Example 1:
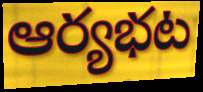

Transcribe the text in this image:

ఆర్యభట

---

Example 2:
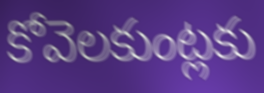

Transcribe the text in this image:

కోవెలకుంట్లకు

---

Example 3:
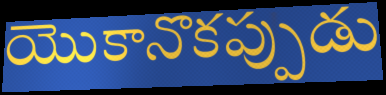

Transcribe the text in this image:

యొకానొకప్పుడు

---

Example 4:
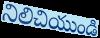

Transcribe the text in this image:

నిలిచియుండి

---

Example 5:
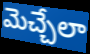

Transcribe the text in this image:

మెచ్చేలా